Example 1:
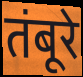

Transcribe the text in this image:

तंबूरे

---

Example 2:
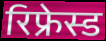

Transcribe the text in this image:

रिफ्रेस्ड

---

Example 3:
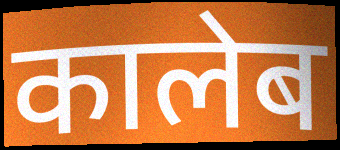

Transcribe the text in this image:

कालेब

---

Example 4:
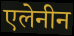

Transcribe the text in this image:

एलेनीन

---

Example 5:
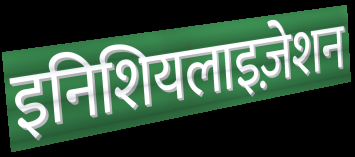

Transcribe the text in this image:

इनिशियलाइज़ेशन